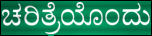
ಚರಿತ್ರೆಯೊಂದು